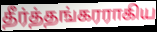
தீர்த்தங்கரராகிய